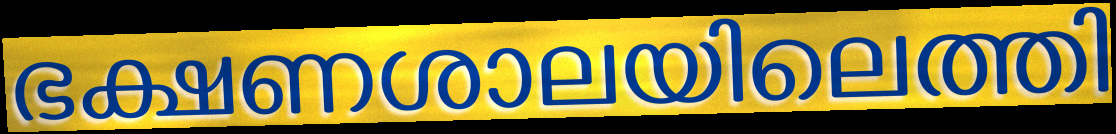
ഭക്ഷണശാലയിലെത്തി